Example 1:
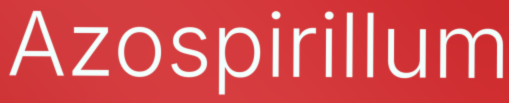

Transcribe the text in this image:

Azospirillum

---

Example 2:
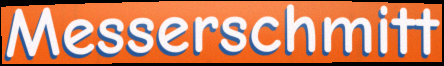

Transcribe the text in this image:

Messerschmitt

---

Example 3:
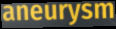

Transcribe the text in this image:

aneurysm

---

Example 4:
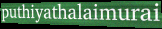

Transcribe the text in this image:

puthiyathalaimurai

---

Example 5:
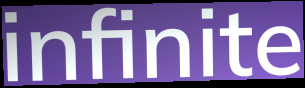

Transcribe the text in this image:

infinite